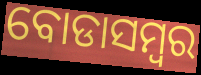
ବୋଡାସମ୍ବର